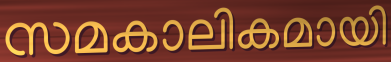
സമകാലികമായി